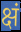
क्षं